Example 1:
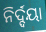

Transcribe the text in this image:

ନିର୍ଦ୍ଦୟା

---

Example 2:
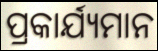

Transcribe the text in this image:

ପ୍ରକାର୍ଯ୍ୟମାନ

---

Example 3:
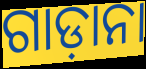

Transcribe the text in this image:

ଗାଡ଼ାନା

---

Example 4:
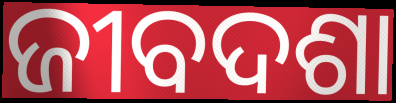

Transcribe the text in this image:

ଜୀବଦଶା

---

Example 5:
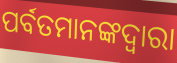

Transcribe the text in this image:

ପର୍ବତମାନଙ୍କଦ୍ଵାରା